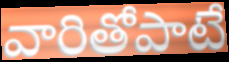
వారితోపాటే